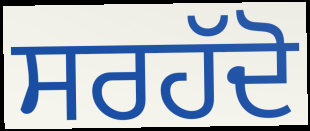
ਸਰਹੱਦੋ